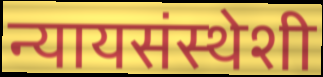
न्यायसंस्थेशी